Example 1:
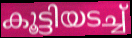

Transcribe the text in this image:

കൂട്ടിയടച്ച്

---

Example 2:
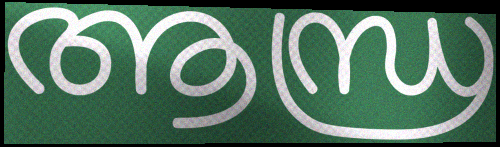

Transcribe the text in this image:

ആന്ധ്ര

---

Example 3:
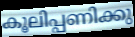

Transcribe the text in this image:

കൂലിപ്പണിക്കു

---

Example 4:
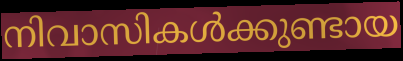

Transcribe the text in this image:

നിവാസികൾക്കുണ്ടായ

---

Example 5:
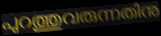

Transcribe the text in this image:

പുറത്തുവരുന്നതിനു